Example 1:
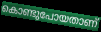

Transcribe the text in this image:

കൊണ്ടുപോയതാണ്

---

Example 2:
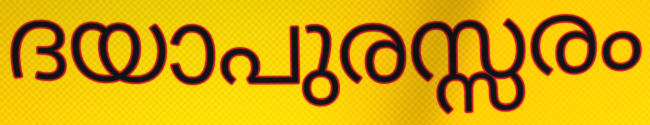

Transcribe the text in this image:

ദയാപുരസ്സരം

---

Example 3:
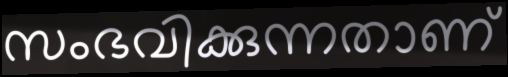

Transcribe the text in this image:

സംഭവിക്കുന്നതാണ്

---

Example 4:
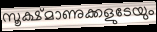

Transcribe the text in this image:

സൂക്ഷ്മാണുക്കളുടേയും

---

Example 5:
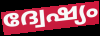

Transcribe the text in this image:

ദ്വേഷ്യം